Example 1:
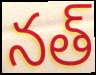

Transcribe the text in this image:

నత్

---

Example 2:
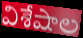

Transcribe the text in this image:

విశేషాల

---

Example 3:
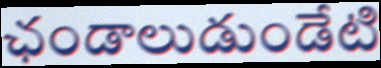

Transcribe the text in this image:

ఛండాలుడుండేటి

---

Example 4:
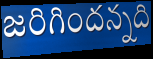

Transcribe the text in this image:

జరిగిందన్నది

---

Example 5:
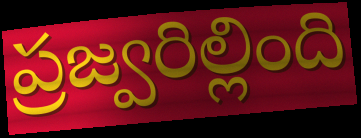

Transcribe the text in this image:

ప్రజ్వరిల్లింది